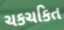
ચકચકિત